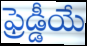
ఫ్రెడ్డీయే